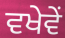
ਵਖੇਵੇਂ